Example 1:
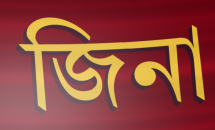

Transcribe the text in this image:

জিনা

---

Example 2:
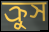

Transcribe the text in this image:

ক্রুস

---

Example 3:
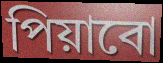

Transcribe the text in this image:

পিয়াবো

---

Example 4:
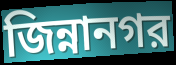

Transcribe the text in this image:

জিন্নানগর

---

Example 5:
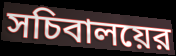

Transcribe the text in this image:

সচিবালয়ের